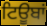
ਟਿਊਬਾਂ